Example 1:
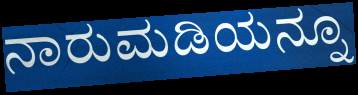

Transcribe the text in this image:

ನಾರುಮಡಿಯನ್ನೂ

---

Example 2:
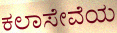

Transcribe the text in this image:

ಕಲಾಸೇವೆಯ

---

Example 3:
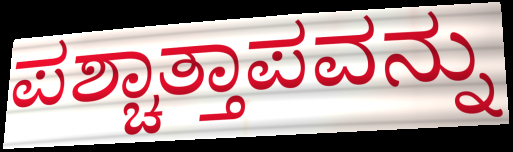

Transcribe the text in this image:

ಪಶ್ಚಾತ್ತಾಪವನ್ನು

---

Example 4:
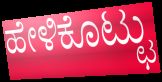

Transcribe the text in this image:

ಹೇಳಿಕೊಟ್ಟು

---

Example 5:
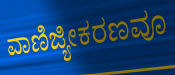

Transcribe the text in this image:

ವಾಣಿಜ್ಯೀಕರಣವೂ